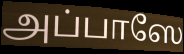
அப்பாஸே